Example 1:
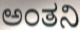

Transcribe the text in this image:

ಅಂತನಿ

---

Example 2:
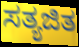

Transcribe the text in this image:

ಸತ್ಯಜಿತ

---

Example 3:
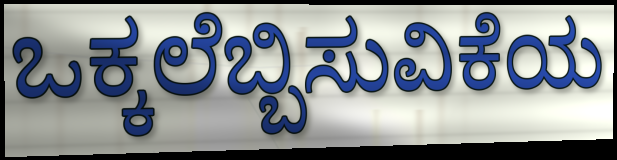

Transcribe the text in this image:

ಒಕ್ಕಲೆಬ್ಬಿಸುವಿಕೆಯ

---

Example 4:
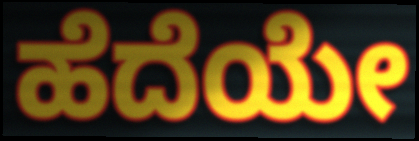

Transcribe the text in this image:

ಹೆದೆಯೇ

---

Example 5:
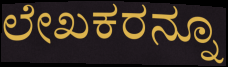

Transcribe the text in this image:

ಲೇಖಕರನ್ನೂ